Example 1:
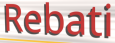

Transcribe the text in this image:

Rebati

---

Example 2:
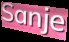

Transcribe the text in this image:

Sanje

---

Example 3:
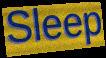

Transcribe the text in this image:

Sleep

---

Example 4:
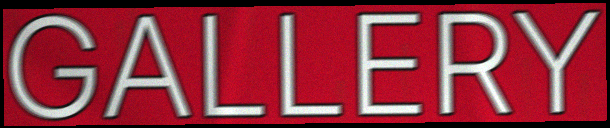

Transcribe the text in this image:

GALLERY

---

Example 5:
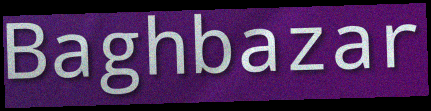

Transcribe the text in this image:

Baghbazar